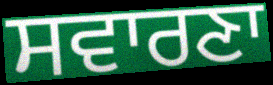
ਸਵਾਰਣਾ